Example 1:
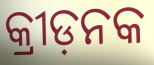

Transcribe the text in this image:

କ୍ରୀଡ଼ନକ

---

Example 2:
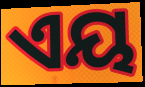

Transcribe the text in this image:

ଏୟ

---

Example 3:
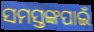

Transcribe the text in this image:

ସମସ୍ତଙ୍କପାଇଁ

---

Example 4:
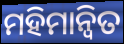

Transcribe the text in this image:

ମହିମାନ୍ୱିତ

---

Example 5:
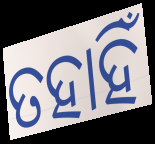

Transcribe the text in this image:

ତହାହିଁ